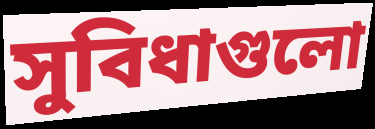
সুবিধাগুলো